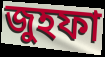
জুহফা